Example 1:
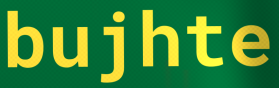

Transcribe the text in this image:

bujhte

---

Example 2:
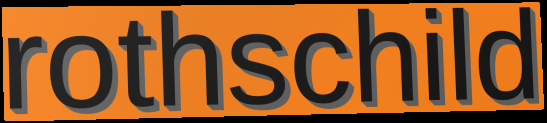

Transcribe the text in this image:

rothschild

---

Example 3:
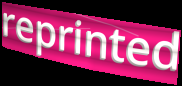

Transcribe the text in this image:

reprinted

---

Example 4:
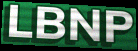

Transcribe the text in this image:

LBNP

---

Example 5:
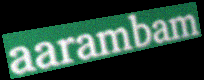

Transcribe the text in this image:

aarambam